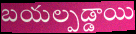
బయల్పడ్డాయి